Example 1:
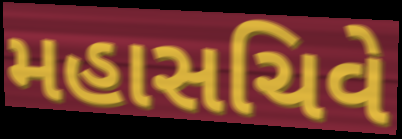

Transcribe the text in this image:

મહાસચિવે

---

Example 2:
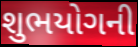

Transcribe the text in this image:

શુભયોગની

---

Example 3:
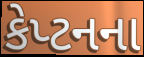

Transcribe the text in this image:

કેપ્ટનના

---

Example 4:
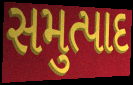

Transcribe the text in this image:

સમુત્પાદ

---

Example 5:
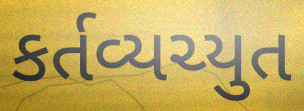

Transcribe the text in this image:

કર્તવ્યચ્યુત